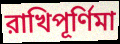
রাখিপূর্ণিমা